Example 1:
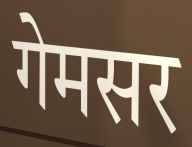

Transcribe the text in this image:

गेमसर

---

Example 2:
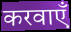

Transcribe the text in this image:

करवाएँ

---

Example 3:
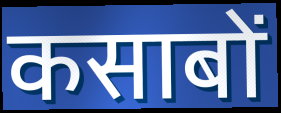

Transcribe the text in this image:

कसाबों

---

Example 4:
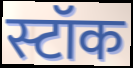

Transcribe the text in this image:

स्‍टॉक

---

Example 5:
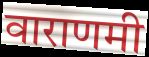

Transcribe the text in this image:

वाराणमी